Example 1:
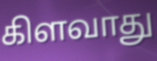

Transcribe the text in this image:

கிளவாது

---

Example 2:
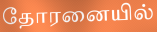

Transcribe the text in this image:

தோரனையில்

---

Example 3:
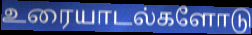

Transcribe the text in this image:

உரையாடல்களோடு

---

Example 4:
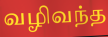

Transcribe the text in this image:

வழிவந்த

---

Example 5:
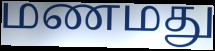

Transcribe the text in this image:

மணமது